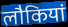
लौकियां